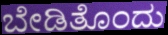
ಬೇಡಿತೊಂದು